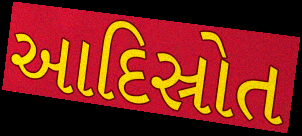
આદિસ્રોત